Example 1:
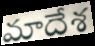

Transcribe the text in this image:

మాదేశ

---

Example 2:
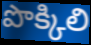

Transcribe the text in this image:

పొక్కిలి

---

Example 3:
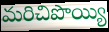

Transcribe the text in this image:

మరిచిపొయ్యి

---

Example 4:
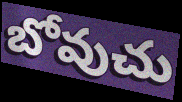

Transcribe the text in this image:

బోవుచు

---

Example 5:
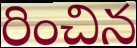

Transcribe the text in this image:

రించిన